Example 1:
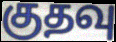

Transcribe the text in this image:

குதவு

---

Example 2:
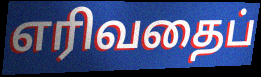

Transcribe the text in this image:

எரிவதைப்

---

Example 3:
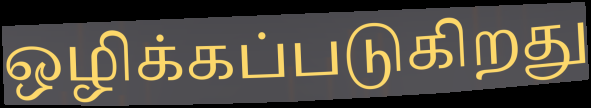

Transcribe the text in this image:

ஒழிக்கப்படுகிறது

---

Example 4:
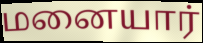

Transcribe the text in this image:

மனையார்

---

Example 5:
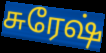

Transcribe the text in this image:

சுரேஷ்